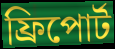
ফ্রিপোর্ট